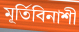
মূর্তিবিনাশী